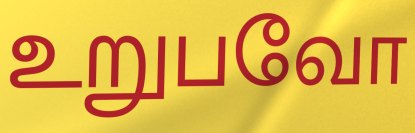
உறுபவோ